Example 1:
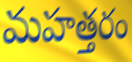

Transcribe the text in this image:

మహత్తరం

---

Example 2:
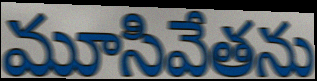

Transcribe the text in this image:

మూసివేతను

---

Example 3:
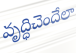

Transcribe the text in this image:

వృద్ధిచెందేలా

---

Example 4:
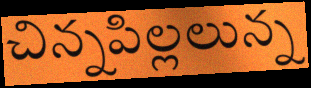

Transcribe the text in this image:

చిన్నపిల్లలున్న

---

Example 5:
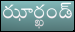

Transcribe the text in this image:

ఝార్ఖండ్